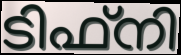
ടിഫ്നി